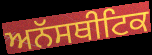
ਅਨੱਸਥੀਟਿਕ